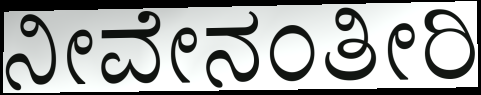
ನೀವೇನಂತೀರಿ